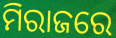
ମିରାଜରେ